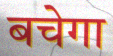
बचेगा